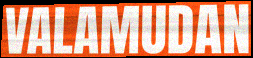
VALAMUDAN